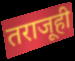
तराजूही